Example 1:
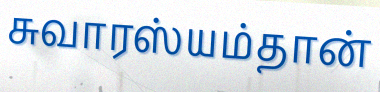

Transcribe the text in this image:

சுவாரஸ்யம்தான்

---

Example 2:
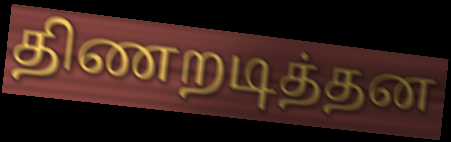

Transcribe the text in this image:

திணறடித்தன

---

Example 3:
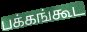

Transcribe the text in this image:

பக்கங்கூட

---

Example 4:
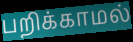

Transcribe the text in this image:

பறிக்காமல்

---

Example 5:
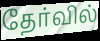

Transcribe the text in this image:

தேர்வில்